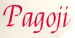
Pagoji